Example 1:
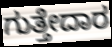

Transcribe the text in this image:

ಗುತ್ತೇದಾರ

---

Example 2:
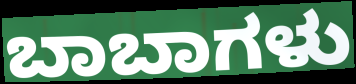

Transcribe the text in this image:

ಬಾಬಾಗಳು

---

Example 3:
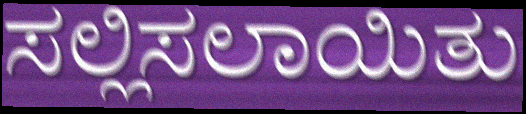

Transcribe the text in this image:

ಸಲ್ಲಿಸಲಾಯಿತು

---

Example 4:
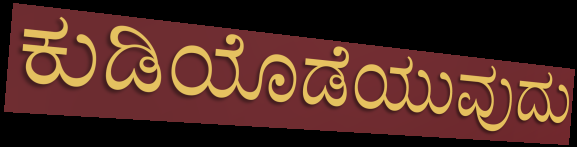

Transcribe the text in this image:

ಕುಡಿಯೊಡೆಯುವುದು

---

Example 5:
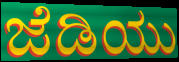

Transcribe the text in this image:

ಜೆಡಿಯು